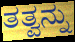
ತತ್ವನ್ನು